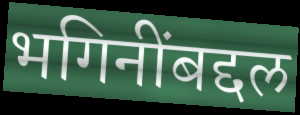
भगिनींबद्दल